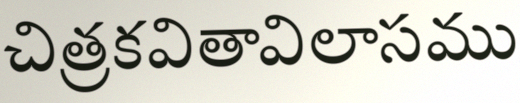
చిత్రకవితావిలాసము